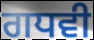
ਗਧਵੀ